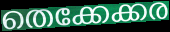
തെക്കേക്കര